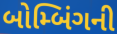
બોમ્બિંગની